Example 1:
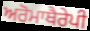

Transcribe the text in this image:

ਅਰੋਮਾਥੈਰੇਪੀ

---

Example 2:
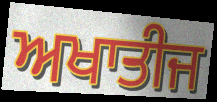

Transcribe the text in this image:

ਅਖਾਤੀਜ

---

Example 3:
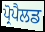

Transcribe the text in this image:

ਪ੍ਰੋਪੈਲਡ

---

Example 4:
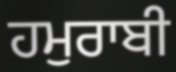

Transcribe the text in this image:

ਹਮੁਰਾਬੀ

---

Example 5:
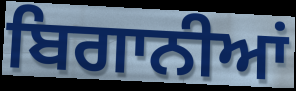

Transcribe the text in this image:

ਬਿਗਾਨੀਆਂ